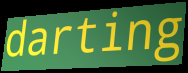
darting